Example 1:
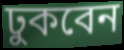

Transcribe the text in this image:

ঢুকবেন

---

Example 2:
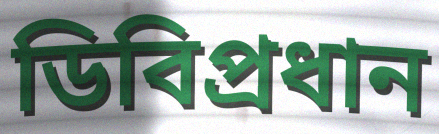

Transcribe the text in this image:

ডিবিপ্রধান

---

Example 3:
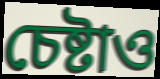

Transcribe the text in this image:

চেষ্টাও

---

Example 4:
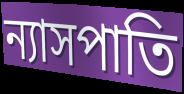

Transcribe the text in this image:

ন্যাসপাতি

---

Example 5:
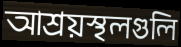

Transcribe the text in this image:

আশ্রয়স্থলগুলি